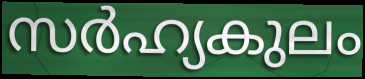
സർഹ്യകുലം